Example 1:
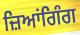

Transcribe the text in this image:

ਜ਼ਿਆਂਗਿੰਗ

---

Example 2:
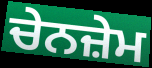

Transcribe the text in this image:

ਚੇਨਜ਼ੇਮ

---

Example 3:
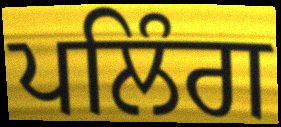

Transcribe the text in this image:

ਪਲਿੰਗ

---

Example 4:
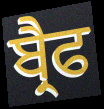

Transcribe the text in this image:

ਬ੍ਰੈਫ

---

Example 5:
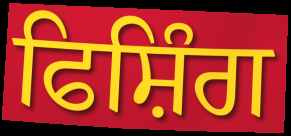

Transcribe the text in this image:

ਫਿਸ਼ਿੰਗ